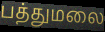
பத்துமலை